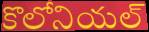
కొలోనియల్